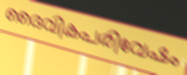
ദൈവികപരിവേഷം